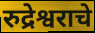
रुद्रेश्वराचे